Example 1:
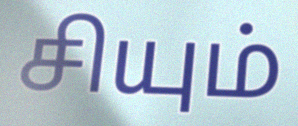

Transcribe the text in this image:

சியும்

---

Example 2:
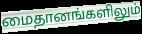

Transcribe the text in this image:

மைதானங்களிலும்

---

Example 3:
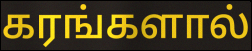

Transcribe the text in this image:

கரங்களால்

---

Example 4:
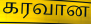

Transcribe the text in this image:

கரவான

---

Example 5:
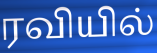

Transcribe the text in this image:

ரவியில்